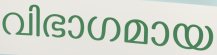
വിഭാഗമായ